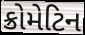
ક્રોમેટિન